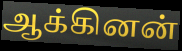
ஆக்கினன்